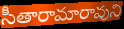
సీతారామారావుని